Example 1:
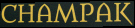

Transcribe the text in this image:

CHAMPAK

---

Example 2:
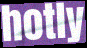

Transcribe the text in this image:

hotly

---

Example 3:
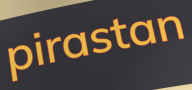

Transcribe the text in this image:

pirastan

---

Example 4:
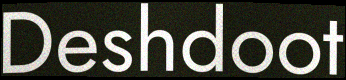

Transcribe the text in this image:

Deshdoot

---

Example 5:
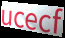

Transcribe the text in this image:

ucecf